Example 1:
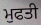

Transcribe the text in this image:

ਮੁਫਤੀ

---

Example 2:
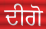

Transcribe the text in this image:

ਦੀਗੋ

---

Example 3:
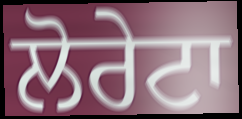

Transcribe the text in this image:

ਲੋਰੇਟਾ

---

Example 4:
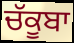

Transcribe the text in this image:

ਚੱਕੂਬਾ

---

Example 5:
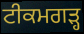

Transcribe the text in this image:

ਟੀਕਮਗੜ੍ਹ